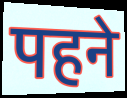
पहने